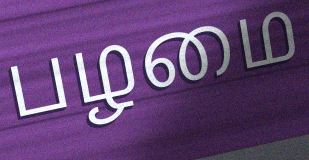
பழமை